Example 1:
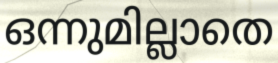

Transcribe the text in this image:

ഒന്നുമില്ലാതെ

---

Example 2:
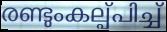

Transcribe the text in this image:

രണ്ടുംകല്പ്പിച്ച്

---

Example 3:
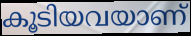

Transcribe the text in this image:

കൂടിയവയാണ്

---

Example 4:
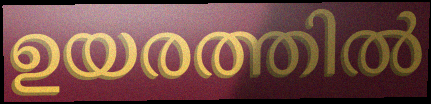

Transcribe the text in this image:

ഉയരത്തിൽ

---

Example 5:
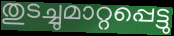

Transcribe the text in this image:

തുടച്ചുമാറ്റപ്പെട്ടു